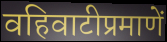
वहिवाटीप्रमाणें